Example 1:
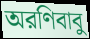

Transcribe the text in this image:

অরণিবাবু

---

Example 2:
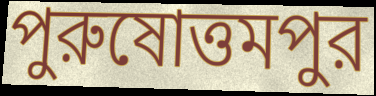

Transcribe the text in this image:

পুরুষোত্তমপুর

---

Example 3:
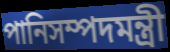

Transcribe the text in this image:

পানিসম্পদমন্ত্রী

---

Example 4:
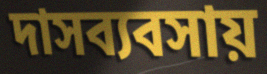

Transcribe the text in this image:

দাসব্যবসায়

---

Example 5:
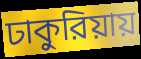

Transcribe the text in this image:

ঢাকুরিয়ায়